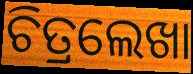
ଚିତ୍ରଲେଖା